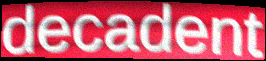
decadent